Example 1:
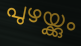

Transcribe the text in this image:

പുഴയ്ക്കും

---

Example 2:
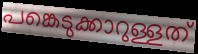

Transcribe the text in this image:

പങ്കെടുക്കാറുള്ളത്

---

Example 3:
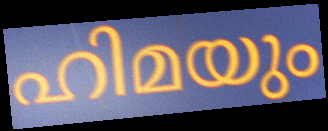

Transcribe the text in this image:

ഹിമയും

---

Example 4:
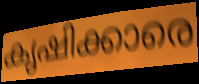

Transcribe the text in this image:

കൃഷിക്കാരെ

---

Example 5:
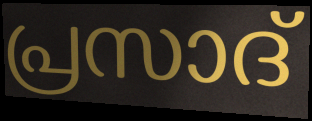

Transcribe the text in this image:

പ്രസാദ്